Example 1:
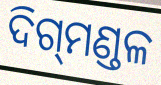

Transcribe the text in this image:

ଦିଗ୍‍ମଣ୍ଡଳ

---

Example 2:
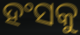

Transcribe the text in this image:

ହଂସକୁ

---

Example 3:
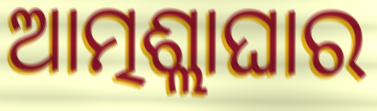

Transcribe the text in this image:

ଆତ୍ମଶ୍ଲାଘାର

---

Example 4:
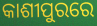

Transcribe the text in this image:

କାଶୀପୁରରେ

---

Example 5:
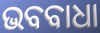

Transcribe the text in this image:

ଭବବାଧା